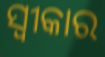
ସ୍ଵୀକାର